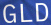
GLD